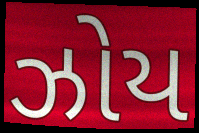
ઝોય